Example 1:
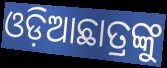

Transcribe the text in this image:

ଓଡ଼ିଆଛାତ୍ରଙ୍କୁ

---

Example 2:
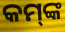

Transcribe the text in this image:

କମ୍‌ଙ୍କ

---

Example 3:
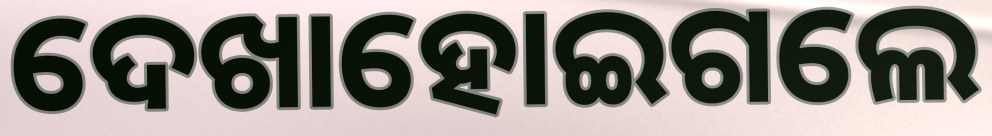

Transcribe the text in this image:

ଦେଖାହୋଇଗଲେ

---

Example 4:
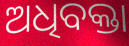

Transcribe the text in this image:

ଅଧିବକ୍ତା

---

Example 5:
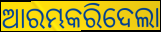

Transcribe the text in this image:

ଆରମ୍ଭକରିଦେଲା